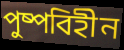
পুষ্পবিহীন